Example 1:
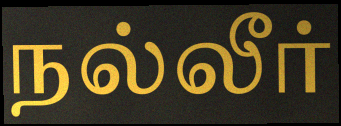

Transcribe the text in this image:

நல்லீர்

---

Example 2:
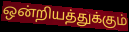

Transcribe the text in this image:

ஒன்றியத்துக்கும்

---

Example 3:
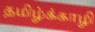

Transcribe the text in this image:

தமிழ்க்காழி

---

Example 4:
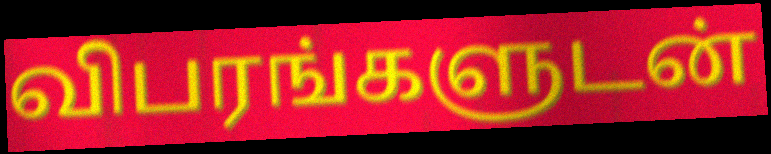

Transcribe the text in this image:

விபரங்களுடன்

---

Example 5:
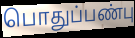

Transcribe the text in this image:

பொதுப்பண்பு